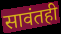
सावंतही